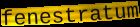
fenestratum